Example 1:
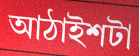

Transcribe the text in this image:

আঠাইশটা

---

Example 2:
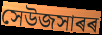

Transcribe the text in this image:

সেউজসাৰৰ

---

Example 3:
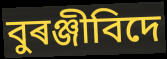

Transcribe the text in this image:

বুৰঞ্জীবিদে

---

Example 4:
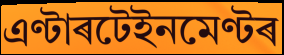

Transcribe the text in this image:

এণ্টাৰটেইনমেণ্টৰ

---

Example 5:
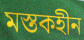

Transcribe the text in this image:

মস্তকহীন